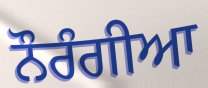
ਨੌਰੰਗੀਆ